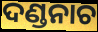
ଦଣ୍ଡନାଚ